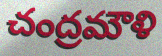
చంద్రమౌళి